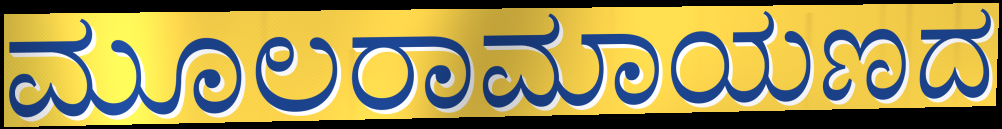
ಮೂಲರಾಮಾಯಣದ